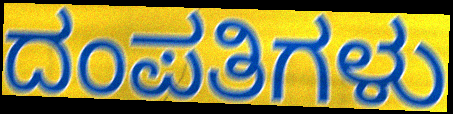
ದಂಪತಿಗಳು